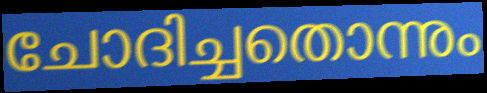
ചോദിച്ചതൊന്നും